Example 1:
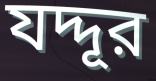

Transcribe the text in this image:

যদ্দূর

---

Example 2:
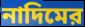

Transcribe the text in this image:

নাদিমের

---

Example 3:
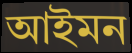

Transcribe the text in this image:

আইমন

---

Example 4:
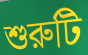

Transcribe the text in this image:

শুরুটি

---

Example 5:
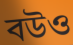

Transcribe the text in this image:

বউও